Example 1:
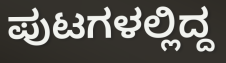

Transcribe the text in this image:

ಪುಟಗಳಲ್ಲಿದ್ದ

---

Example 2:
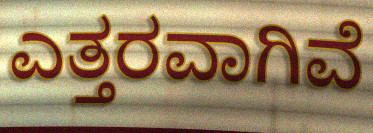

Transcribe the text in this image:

ಎತ್ತರವಾಗಿವೆ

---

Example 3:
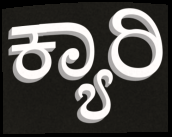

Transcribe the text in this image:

ಕ್ಯಾರಿ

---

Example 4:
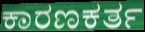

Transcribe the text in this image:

ಕಾರಣಕರ್ತ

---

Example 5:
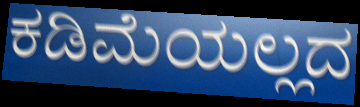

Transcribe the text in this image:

ಕಡಿಮೆಯಲ್ಲದ